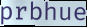
prbhue